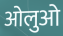
ओलुओ